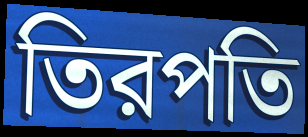
তিরপতি